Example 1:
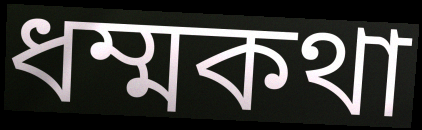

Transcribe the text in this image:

ধম্মকথা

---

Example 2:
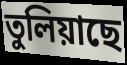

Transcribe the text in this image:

তুলিয়াছে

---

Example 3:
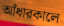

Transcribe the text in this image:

আঁধারকালে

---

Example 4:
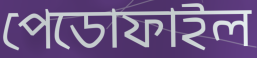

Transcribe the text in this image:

পেডোফাইল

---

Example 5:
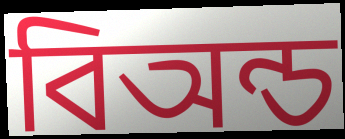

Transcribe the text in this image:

বিঅন্ড